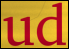
ud